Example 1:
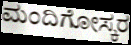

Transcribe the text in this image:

ಮಂದಿಗೋಸ್ಕರ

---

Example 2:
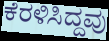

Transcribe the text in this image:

ಕೆರಳಿಸಿದ್ದವು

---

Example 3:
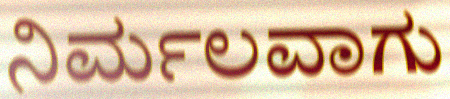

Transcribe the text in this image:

ನಿರ್ಮಲವಾಗು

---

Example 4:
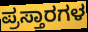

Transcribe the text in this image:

ಪ್ರಸ್ತಾರಗಳ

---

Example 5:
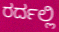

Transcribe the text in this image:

ರರ್ದಲ್ಲಿ